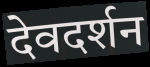
देवदर्शन